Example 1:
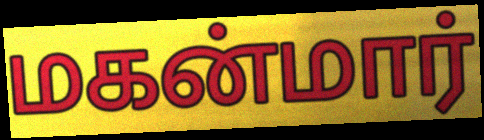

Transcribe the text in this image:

மகன்மார்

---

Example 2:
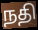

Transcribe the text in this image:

நதி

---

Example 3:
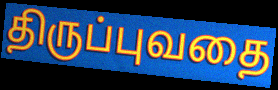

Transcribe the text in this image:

திருப்புவதை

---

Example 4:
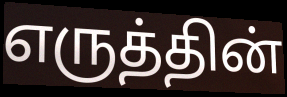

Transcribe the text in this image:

எருத்தின்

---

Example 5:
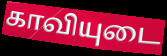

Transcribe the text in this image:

காவியுடை